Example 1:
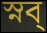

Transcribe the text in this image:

স্নব্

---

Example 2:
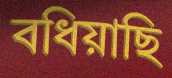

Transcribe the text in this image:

বধিয়াছি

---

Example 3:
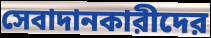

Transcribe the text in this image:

সেবাদানকারীদের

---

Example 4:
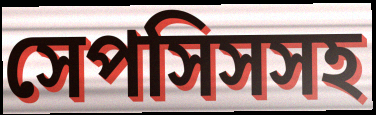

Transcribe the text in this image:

সেপসিসসহ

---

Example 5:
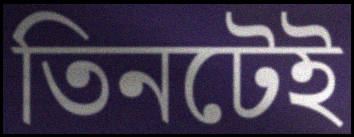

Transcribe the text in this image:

তিনটেই